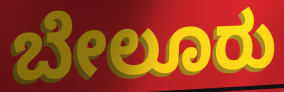
ಬೇಲೂರು